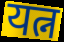
यत्न